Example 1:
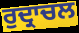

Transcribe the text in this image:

ਰੁਦ੍ਰਾਚਲ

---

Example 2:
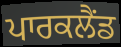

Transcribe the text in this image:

ਪਾਰਕਲੈਂਡ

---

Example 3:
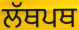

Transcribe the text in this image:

ਲੱਥਪਥ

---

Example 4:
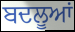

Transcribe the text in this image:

ਬਦਲੂਆਂ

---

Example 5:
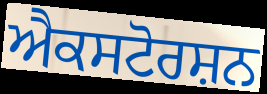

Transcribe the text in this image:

ਐਕਸਟੋਰਸ਼ਨ